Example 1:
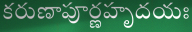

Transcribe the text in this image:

కరుణాపూర్ణహృదయః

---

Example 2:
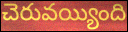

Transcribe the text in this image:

చెరువయ్యింది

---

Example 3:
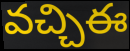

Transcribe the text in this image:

వచ్చిఈ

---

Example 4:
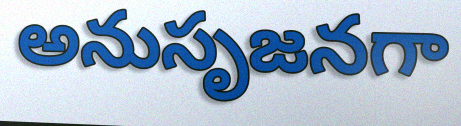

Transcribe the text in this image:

అనుసృజనగా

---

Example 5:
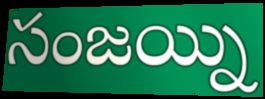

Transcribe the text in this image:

సంజయ్ని